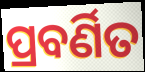
ପ୍ରବର୍ଣିତ